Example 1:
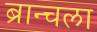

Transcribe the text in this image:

ब्रान्चला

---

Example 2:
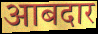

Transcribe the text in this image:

आबदार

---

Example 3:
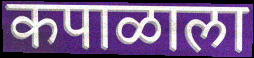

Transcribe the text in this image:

कपाळाला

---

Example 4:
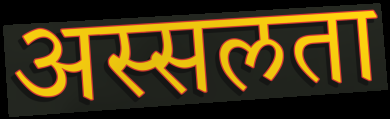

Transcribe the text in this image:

अस्सलता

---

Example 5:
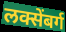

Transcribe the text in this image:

लक्सेंबर्ग